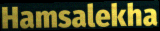
Hamsalekha